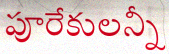
పూరేకులన్నీ